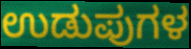
ಉಡುಪುಗಳ